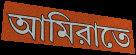
আমিরাতে